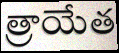
త్రాయేత